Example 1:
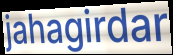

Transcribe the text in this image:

jahagirdar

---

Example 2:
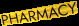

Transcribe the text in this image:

PHARMACY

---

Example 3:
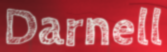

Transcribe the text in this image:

Darnell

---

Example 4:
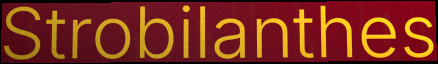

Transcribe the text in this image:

Strobilanthes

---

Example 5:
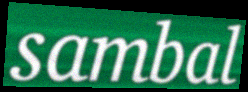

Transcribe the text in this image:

sambal